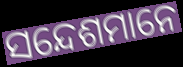
ସନ୍ଦେଶମାନେ